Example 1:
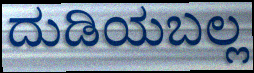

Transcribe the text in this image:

ದುಡಿಯಬಲ್ಲ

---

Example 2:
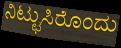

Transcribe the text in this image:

ನಿಟ್ಟುಸಿರೊಂದು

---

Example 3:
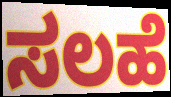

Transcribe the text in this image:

ಸಲಹೆ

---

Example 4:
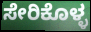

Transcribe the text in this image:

ಸೇರಿಕೊಳ್ಳ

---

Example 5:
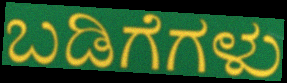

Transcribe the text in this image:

ಬಡಿಗೆಗಳು